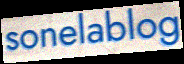
sonelablog